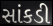
સાંકડી